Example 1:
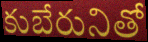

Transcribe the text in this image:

కుబేరునితో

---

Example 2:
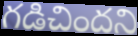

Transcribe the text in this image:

గడిచిందని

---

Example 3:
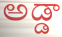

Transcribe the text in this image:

అడ్డా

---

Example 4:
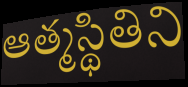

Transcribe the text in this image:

ఆత్మస్థితిని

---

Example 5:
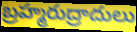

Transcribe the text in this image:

బ్రహ్మరుద్రాదులు